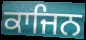
ਕਾਜਿਨ